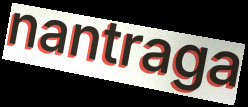
nantraga